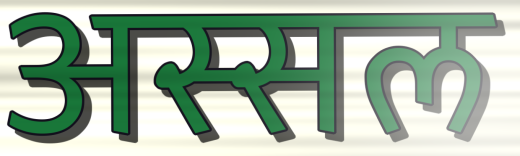
अस्सल